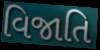
વિજાતિ